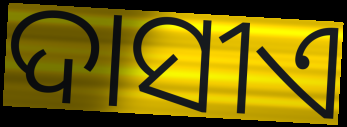
ଦାସୀଏ